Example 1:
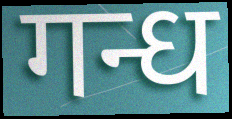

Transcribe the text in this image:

गन्‍ध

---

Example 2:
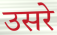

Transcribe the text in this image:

उसरे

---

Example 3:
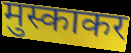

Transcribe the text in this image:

मुस्काकर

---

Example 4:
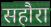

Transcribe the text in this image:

सहौरा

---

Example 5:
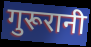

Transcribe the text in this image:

गुरूरानी